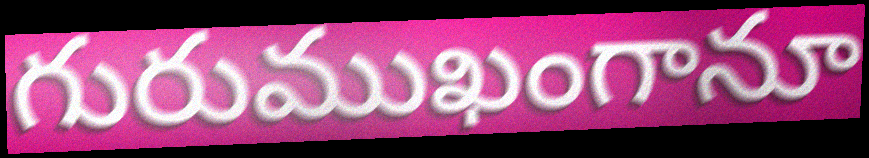
గురుముఖంగానూ